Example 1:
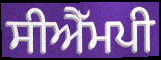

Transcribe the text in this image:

ਸੀਐੱਮਪੀ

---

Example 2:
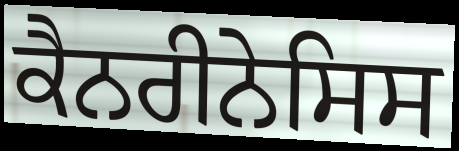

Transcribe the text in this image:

ਕੈਨਰੀਨੇਸਿਸ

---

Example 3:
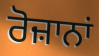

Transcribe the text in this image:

ਰੋਜ਼ਾਨਾਂ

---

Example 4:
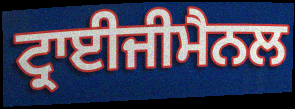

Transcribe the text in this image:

ਟ੍ਰਾਈਜੀਮੈਨਲ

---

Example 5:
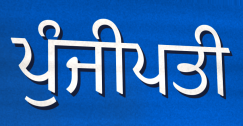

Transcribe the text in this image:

ਪੁੰਜੀਪਤੀ